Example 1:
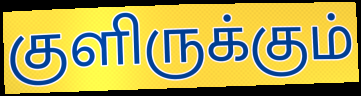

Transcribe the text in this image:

குளிருக்கும்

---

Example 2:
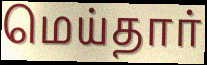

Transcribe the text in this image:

மெய்தார்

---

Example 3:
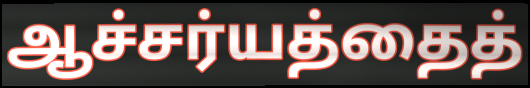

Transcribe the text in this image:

ஆச்சர்யத்தைத்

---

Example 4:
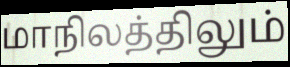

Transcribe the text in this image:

மாநிலத்திலும்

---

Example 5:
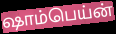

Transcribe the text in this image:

ஷாம்பெய்ன்